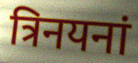
त्रिनयनां